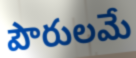
పౌరులమే